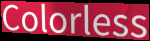
Colorless